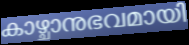
കാഴ്ചാനുഭവമായി